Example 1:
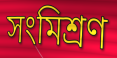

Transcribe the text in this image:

সংমিশ্রণ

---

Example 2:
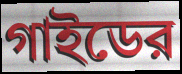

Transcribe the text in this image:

গাইডের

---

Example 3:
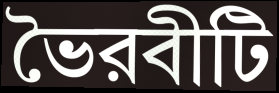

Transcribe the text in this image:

ভৈরবীটি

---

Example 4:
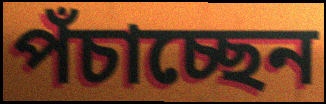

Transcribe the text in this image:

পঁচাচ্ছেন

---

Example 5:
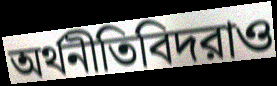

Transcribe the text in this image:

অর্থনীতিবিদরাও